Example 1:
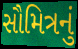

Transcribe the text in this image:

સૌમિત્રનું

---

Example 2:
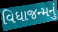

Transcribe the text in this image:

વિધાજન્મનું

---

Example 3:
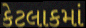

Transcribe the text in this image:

કેટલાકમાં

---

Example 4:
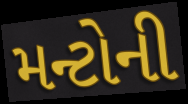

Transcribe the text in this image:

મન્ટોની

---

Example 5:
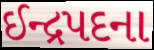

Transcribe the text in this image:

ઈન્દ્રપદના